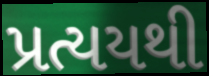
પ્રત્યયથી